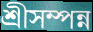
শ্রীসম্পন্ন